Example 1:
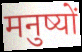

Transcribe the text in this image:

मनुष्यों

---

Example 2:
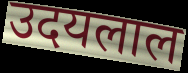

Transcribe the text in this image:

उदयलाल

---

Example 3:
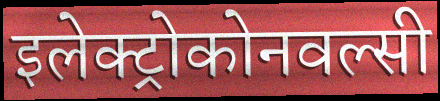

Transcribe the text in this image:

इलेक्ट्रोकोनवल्सी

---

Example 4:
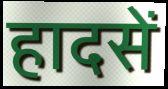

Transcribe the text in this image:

हादसें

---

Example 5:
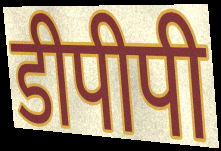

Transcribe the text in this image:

डीपीपी